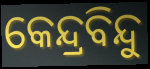
କେନ୍ଦ୍ରବିନ୍ଦୁ